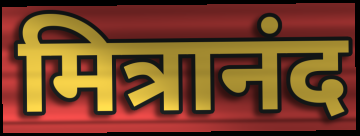
मित्रानंद